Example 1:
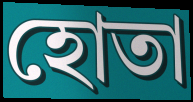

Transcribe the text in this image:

হোতা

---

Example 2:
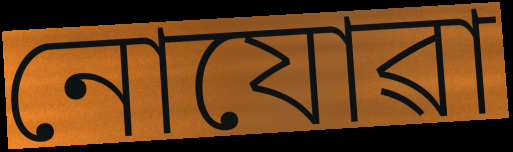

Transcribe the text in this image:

নোযোৱা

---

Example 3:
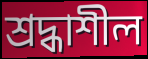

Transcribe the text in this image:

শ্ৰদ্ধাশীল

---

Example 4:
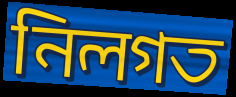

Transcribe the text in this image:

নিলগত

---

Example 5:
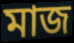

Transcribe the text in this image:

মাজ